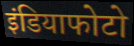
इंडियाफोटो